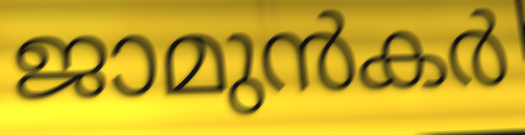
ജാമുൻകർ